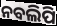
ନବଲିପି